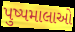
પુષ્પમાલાઓ